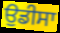
ਉਡੀਸਾ